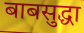
बाबसुद्धा